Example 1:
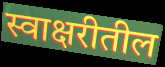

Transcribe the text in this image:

स्वाक्षरीतील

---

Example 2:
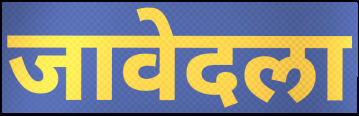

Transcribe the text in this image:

जावेदला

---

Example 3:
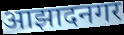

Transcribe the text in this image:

आझादनगर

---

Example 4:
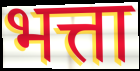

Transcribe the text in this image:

भत्ता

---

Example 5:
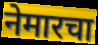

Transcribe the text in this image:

नेमारचा